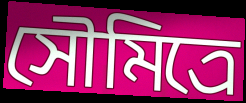
সৌমিত্রে